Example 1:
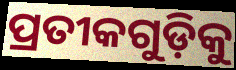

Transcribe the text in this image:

ପ୍ରତୀକଗୁଡ଼ିକୁ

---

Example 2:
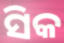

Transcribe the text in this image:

ସିକ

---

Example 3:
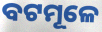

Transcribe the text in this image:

ବଟମୂଳେ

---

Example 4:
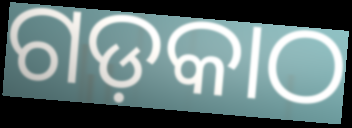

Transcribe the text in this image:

ଗଡ଼କାଠ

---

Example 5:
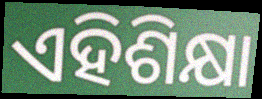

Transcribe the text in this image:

ଏହିଶିକ୍ଷା